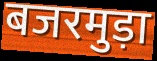
बजरमुड़ा